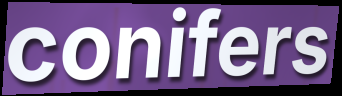
conifers